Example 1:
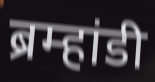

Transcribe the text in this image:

ब्रम्हांडी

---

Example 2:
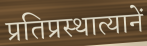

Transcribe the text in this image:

प्रतिप्रस्थात्यानें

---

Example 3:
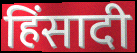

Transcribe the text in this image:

हिंसादी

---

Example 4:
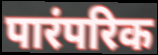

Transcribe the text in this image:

पारंपरिक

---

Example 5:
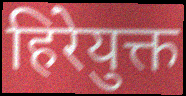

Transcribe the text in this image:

हिरेयुक्त